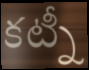
కట్నీ